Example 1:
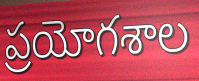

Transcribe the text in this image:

ప్రయోగశాల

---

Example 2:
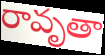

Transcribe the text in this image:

రావృతా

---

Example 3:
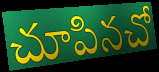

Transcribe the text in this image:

చూపినచో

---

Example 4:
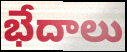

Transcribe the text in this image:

భేదాలు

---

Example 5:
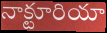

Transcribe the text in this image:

నాక్టూరియా